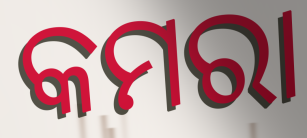
କମରା